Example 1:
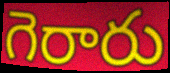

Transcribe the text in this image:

గెరారు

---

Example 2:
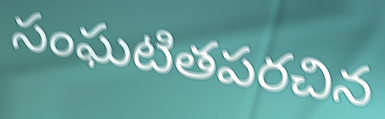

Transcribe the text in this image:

సంఘటితపరచిన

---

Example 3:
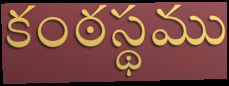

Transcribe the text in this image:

కంఠస్థము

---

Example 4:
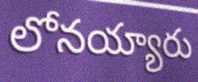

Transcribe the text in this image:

లోనయ్యారు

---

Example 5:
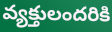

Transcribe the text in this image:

వ్యక్తులందరికి